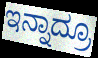
ಇನ್ನಾದ್ರೂ